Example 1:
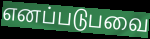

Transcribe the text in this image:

எனப்படுபவை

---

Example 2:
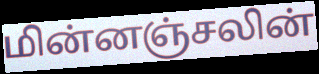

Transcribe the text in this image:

மின்னஞ்சலின்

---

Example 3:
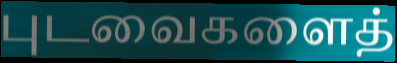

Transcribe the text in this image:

புடவைகளைத்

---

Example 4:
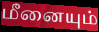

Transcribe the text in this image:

மீனையும்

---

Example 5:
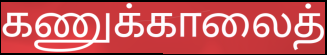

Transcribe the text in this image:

கணுக்காலைத்